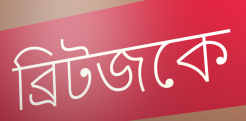
ব্রিটজকে